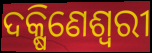
ଦକ୍ଷିଣେଶ୍ଵରୀ